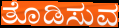
ತೊಡಿಸುವ